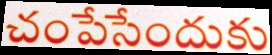
చంపేసేందుకు